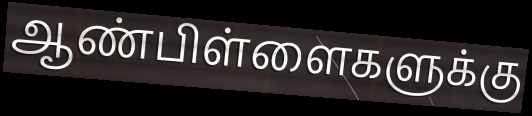
ஆண்பிள்ளைகளுக்கு